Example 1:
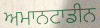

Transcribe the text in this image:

ਅਮਾਨਟਾਡੀਨ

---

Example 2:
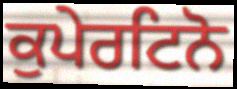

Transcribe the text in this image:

ਕੁਪੇਰਟਿਨੋ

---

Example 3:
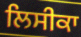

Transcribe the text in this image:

ਲਿਸੀਕਾ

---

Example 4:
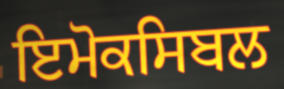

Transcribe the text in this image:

ਇਮੋਕਸਿਬਲ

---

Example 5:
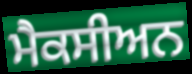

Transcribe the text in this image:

ਮੈਕਸੀਅਨ